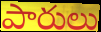
పారులు